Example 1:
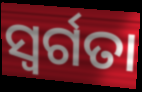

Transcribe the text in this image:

ସ୍ବର୍ଗତା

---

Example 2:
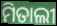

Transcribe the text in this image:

ମିତାଲୀ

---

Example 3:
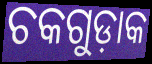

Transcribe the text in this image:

ଚକଗୁଡ଼ାକ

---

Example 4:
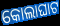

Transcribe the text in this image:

କୋଲାଘାଟ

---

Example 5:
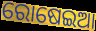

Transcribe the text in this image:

ରୋଷେଇଆ